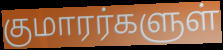
குமாரர்களுள்